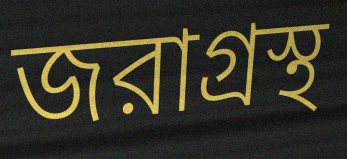
জরাগ্রস্থ